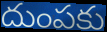
దుంపకు